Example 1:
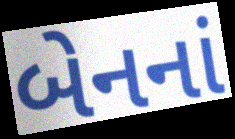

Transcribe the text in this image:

બેનનાં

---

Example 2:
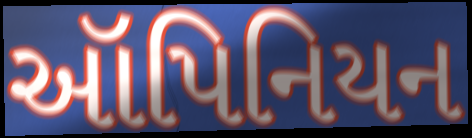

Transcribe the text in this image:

ઑપિનિયન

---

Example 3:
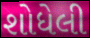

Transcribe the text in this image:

શોધેલી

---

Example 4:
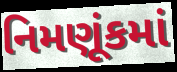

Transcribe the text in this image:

નિમણૂંકમાં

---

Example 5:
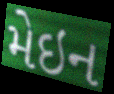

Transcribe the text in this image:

મેઇન